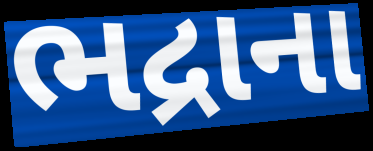
ભદ્રાના